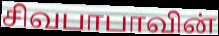
சிவபாபாவின்